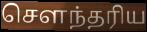
சௌந்தரிய